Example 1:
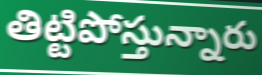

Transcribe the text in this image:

తిట్టిపోస్తున్నారు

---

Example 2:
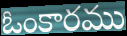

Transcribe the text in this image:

ఓంకారము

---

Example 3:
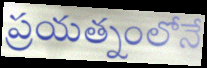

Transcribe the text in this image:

ప్రయత్నంలోనే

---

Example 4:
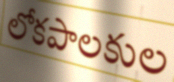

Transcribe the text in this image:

లోకపాలకుల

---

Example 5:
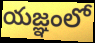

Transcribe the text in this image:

యజ్ఞంలో